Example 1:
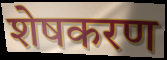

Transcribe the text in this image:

शेषकरण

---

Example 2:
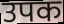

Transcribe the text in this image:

उपक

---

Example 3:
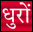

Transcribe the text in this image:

धुरों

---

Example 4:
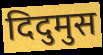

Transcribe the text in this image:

दिदुमुस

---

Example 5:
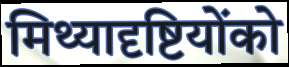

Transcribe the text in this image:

मिथ्यादृष्टियोंको